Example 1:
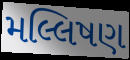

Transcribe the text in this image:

મલ્લિષણ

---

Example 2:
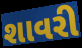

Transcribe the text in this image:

શાવરી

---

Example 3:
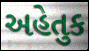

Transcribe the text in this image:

અહેતુક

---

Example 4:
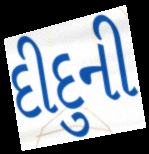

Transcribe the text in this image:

દીદુની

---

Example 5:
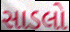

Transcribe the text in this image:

સાડલો